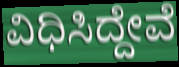
ವಿಧಿಸಿದ್ದೇವೆ